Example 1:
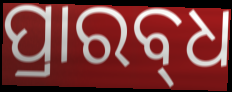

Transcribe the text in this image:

ପ୍ରାରବ୍‍ଧ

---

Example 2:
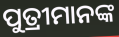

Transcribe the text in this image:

ପୁତ୍ରୀମାନଙ୍କ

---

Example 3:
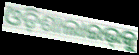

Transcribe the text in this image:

ଓଡ଼ିଶାଲାଇଭ୍‌କୁ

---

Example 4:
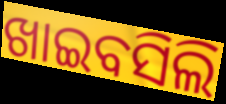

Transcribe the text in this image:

ଖାଇବସିଲି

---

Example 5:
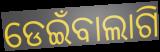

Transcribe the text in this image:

ଡେଇଁବାଲାଗି